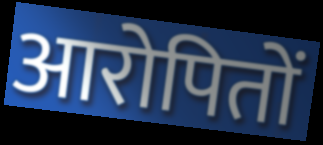
आरोपितों